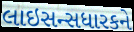
લાઇસન્સધારકને